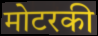
मोटरकी